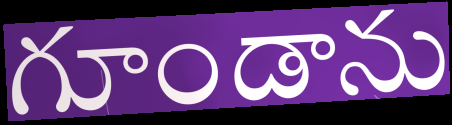
గూండాను